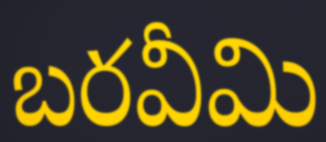
బరవీమి